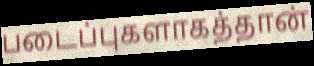
படைப்புகளாகத்தான்